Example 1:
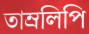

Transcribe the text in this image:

তাম্রলিপি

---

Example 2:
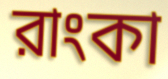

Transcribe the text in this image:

রাংকা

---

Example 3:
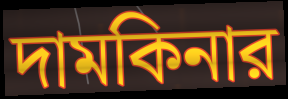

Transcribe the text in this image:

দামকিনার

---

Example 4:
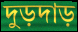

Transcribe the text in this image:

দুড়দাড়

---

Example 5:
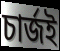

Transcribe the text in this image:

চার্জই